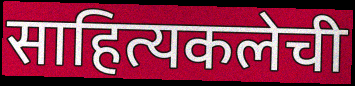
साहित्यकलेची